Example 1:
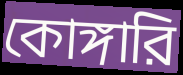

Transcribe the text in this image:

কোঙ্গারি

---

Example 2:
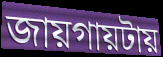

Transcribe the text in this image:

জায়গায়টায়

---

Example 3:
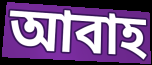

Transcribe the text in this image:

আবাহ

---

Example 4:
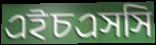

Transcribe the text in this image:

এইচএসসি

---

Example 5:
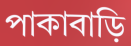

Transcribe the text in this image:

পাকাবাড়ি